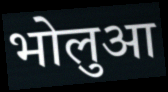
भोलुआ